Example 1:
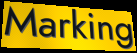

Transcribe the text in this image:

Marking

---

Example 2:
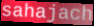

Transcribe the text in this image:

sahajach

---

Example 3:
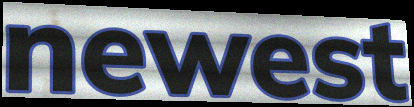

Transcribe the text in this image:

newest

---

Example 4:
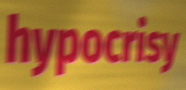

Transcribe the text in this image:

hypocrisy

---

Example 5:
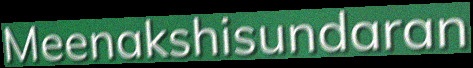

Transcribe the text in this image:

Meenakshisundaran